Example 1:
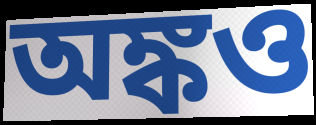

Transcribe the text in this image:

অঙ্কও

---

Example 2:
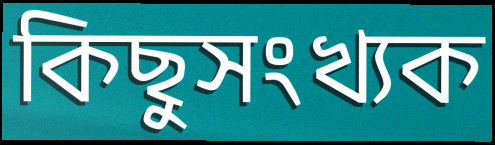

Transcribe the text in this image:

কিছুসংখ্যক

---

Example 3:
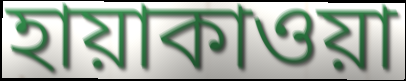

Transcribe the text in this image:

হায়াকাওয়া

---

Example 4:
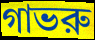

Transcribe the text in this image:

গাভরু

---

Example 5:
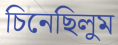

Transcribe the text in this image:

চিনেছিলুম